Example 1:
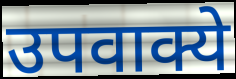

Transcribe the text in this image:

उपवाक्ये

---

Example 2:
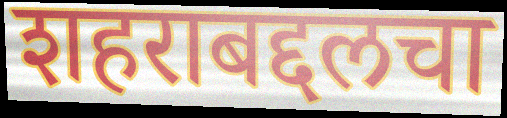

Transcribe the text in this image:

शहराबद्दलचा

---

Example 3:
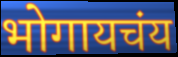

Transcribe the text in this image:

भोगायचंय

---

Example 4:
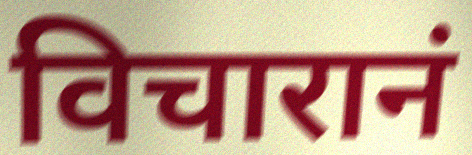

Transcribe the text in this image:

विचारानं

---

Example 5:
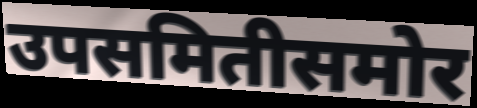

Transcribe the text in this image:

उपसमितीसमोर